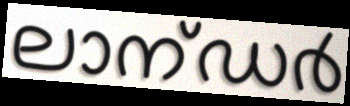
ലാന്ഡർ